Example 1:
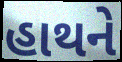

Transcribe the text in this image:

હાથને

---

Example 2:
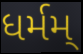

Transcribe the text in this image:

ધર્મમ્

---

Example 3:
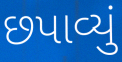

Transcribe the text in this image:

છપાવ્યું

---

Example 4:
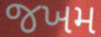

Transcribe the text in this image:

જખમ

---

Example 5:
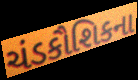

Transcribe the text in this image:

ચંડકૌશિકના